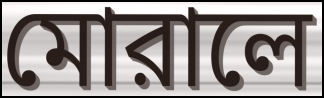
মোরালে